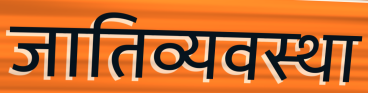
जातिव्यवस्था